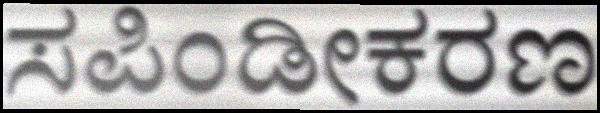
ಸಪಿಂಡೀಕರಣ